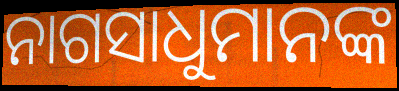
ନାଗସାଧୁମାନଙ୍କ